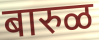
बारुळ